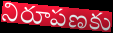
నిరూపణకు